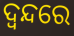
ଦ୍ଵନ୍ଦରେ